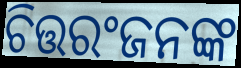
ଚିତ୍ତରଂଜନଙ୍କ